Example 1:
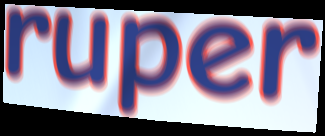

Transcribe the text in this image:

ruper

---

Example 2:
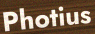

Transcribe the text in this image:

Photius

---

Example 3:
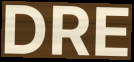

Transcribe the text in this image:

DRE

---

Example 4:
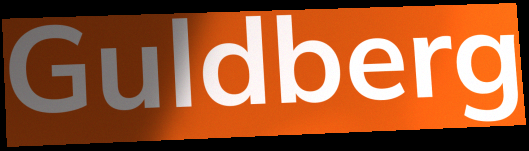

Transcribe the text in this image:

Guldberg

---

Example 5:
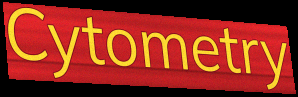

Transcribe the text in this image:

Cytometry